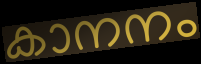
കാനനം